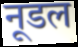
नूडल